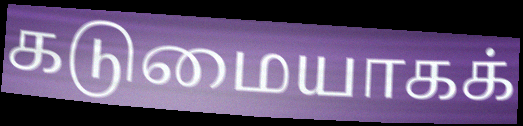
கடுமையாகக்